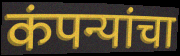
कंपन्यांचा